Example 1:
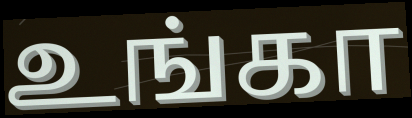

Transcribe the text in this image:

உங்கா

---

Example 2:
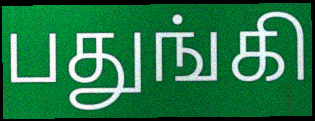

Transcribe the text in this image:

பதுங்கி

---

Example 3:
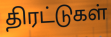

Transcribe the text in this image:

திரட்டுகள்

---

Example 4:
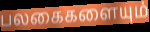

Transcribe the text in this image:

பலகைகளையும்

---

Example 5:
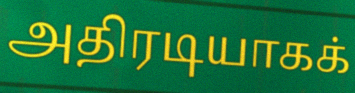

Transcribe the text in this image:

அதிரடியாகக்